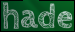
hade